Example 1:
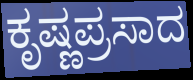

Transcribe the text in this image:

ಕೃಷ್ಣಪ್ರಸಾದ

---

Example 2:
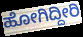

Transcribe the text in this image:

ಹೋಗಿದ್ದೀರಿ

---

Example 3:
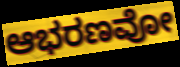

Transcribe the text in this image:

ಆಭರಣವೋ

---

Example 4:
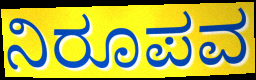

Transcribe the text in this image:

ನಿರೂಪವ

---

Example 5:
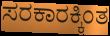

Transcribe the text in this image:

ಸರಕಾರಕ್ಕಿಂತ